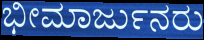
ಭೀಮಾರ್ಜುನರು